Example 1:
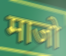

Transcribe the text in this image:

माजो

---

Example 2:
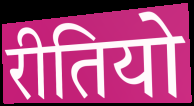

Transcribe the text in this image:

रीतियो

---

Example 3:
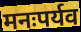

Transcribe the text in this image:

मनःपर्यव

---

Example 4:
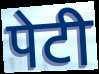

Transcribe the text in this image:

पेटी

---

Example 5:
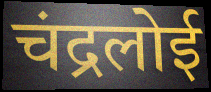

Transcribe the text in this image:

चंद्रलोई